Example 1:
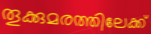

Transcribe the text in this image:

തൂക്കുമരത്തിലേക്ക്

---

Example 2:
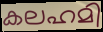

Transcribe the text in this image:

കലഹമി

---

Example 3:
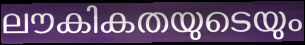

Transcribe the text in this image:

ലൗകികതയുടെയും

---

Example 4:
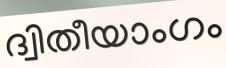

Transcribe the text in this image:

ദ്വിതീയാംഗം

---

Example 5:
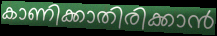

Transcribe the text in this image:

കാണിക്കാതിരിക്കാൻ